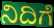
ನಿದಿಗೆ